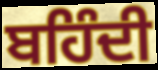
ਬਹਿੰਦੀ